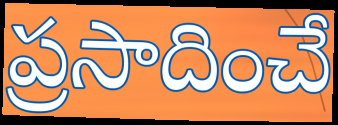
ప్రసాదించే